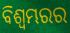
ବିଶ୍ଵମ୍ଭରର